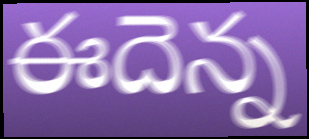
ఈదెన్న